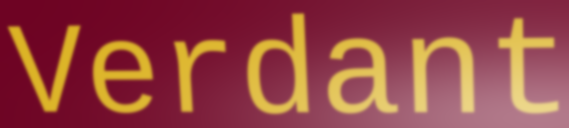
Verdant